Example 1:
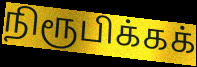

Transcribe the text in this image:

நிரூபிக்கக்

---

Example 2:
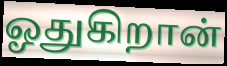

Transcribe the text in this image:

ஓதுகிறான்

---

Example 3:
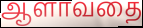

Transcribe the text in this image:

ஆளாவதை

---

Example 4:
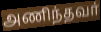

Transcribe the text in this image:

அணிந்தவர்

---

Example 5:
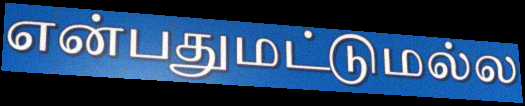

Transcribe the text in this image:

என்பதுமட்டுமல்ல